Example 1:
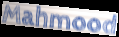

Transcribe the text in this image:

Mahmood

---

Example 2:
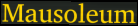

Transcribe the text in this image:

Mausoleum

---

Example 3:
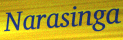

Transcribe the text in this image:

Narasinga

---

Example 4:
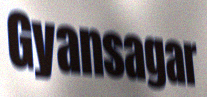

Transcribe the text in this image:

Gyansagar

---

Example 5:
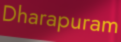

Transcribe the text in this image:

Dharapuram